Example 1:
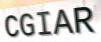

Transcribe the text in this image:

CGIAR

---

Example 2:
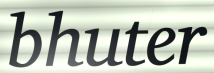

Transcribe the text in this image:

bhuter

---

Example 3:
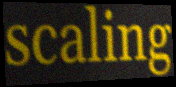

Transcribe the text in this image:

scaling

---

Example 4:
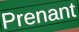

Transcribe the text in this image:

Prenant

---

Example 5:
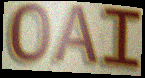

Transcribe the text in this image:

OAI